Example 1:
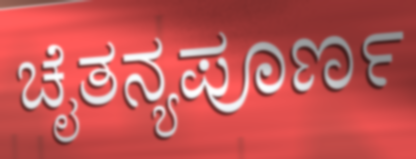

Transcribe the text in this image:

ಚೈತನ್ಯಪೂರ್ಣ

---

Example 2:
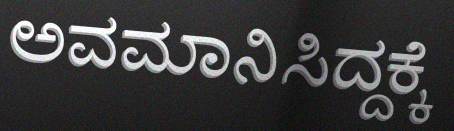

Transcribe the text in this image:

ಅವಮಾನಿಸಿದ್ದಕ್ಕೆ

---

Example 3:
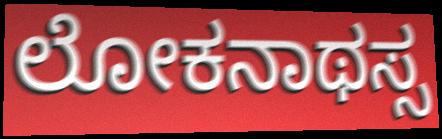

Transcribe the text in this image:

ಲೋಕನಾಥಸ್ಸ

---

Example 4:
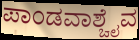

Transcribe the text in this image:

ಪಾಂಡವಾಶ್ಚೈವ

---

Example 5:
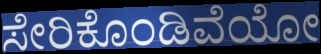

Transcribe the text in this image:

ಸೇರಿಕೊಂಡಿವೆಯೋ